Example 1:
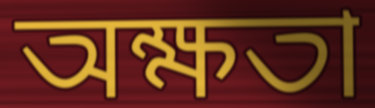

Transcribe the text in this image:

অক্ষতা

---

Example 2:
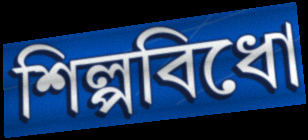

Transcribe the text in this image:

শিল্পবিধো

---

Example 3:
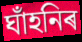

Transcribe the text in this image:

ঘাঁহনিৰ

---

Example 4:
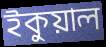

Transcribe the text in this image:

ইকুয়াল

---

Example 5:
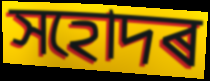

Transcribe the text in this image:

সহোদৰ